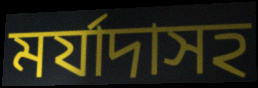
মর্যাদাসহ